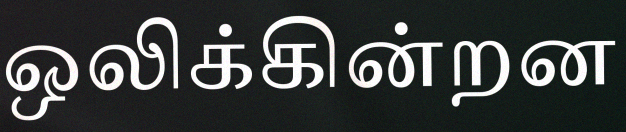
ஒலிக்கின்றன